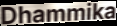
Dhammika